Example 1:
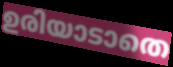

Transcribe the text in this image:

ഉരിയാടാതെ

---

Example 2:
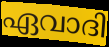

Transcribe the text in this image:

ഏവാദി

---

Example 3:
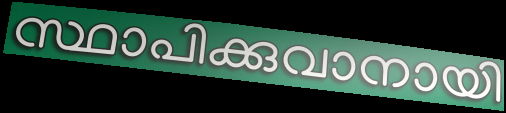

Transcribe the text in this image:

സ്ഥാപിക്കുവാനായി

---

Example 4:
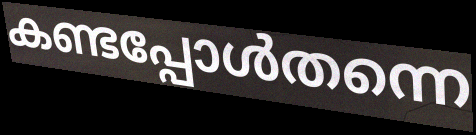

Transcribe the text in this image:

കണ്ടപ്പോൾതന്നെ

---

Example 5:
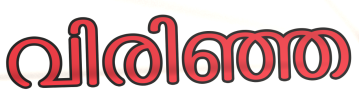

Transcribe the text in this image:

വിരിഞ്ഞ